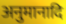
अनुमानादि